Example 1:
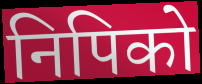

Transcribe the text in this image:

निपिको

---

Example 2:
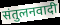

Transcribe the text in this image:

संतुलनवादी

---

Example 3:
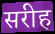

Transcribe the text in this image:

सरीह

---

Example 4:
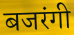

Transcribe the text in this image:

बजरंगी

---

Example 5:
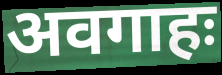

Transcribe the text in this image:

अवगाहः